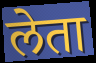
लेता